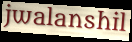
jwalanshil